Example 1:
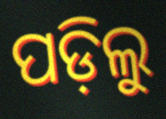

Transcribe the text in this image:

ପଡ଼ିଲୁ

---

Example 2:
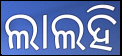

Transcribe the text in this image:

ଲାଲହି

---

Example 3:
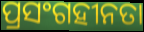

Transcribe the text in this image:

ପ୍ରସଂଗହୀନତା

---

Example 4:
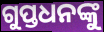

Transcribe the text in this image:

ଗୁପ୍ତଧନଙ୍କୁ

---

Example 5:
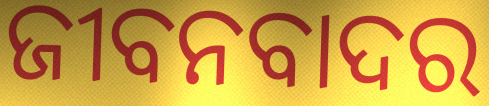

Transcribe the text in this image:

ଜୀବନବାଦର